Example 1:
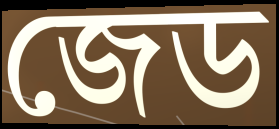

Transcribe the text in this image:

জেড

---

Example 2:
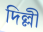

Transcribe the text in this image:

দিল্লী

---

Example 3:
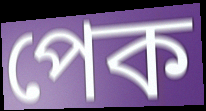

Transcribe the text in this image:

পেক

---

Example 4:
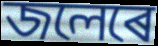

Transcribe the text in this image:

জলেৰে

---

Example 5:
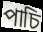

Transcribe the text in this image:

পাচি